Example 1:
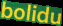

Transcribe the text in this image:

bolidu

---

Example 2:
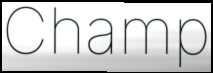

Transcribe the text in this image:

Champ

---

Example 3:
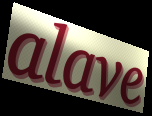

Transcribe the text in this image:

alave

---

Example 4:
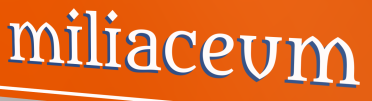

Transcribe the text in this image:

miliaceum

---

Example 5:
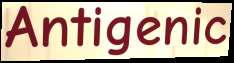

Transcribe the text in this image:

Antigenic